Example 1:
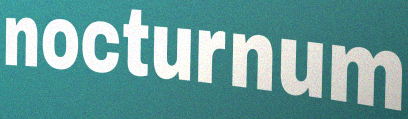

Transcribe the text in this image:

nocturnum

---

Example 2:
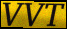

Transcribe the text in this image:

VVT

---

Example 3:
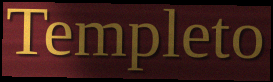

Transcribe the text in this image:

Templeto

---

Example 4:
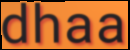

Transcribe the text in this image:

dhaa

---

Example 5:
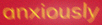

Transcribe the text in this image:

anxiously